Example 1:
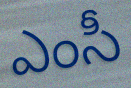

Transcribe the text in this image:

ఎంసీ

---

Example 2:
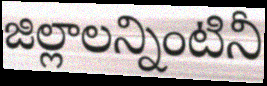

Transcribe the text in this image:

జిల్లాలన్నింటినీ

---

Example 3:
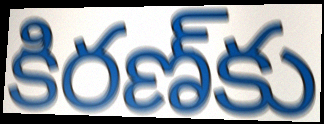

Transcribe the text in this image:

కిరణ్‌కు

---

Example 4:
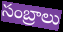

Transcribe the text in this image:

సంబ్రాలు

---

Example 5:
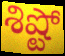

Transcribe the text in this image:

శిష్టో